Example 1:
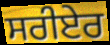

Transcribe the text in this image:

ਸਰੀਏਰ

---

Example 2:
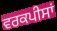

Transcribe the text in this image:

ਵਰਕਪੀਸਾਂ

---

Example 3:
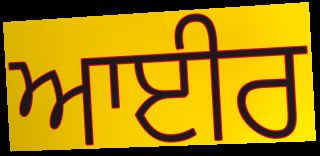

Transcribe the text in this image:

ਆਈਰ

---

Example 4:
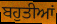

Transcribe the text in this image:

ਬਹੁਤੀਆਂ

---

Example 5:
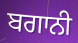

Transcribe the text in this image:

ਬਗਾਨੀ